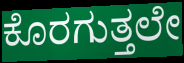
ಕೊರಗುತ್ತಲೇ